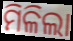
ମିଳିଲା